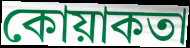
কোয়াকতা